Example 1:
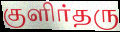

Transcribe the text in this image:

குளிர்தரு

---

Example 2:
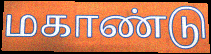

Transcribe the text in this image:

மகாண்டு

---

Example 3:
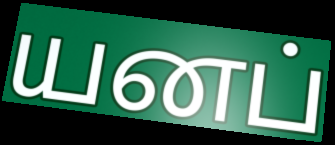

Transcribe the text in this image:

யனப்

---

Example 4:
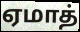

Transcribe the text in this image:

ஏமாத்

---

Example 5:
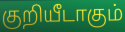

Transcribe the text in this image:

குறியீடாகும்